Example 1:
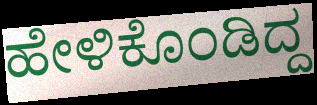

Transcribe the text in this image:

ಹೇಳಿಕೊಂಡಿದ್ದ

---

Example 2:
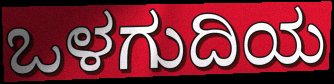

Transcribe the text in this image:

ಒಳಗುದಿಯ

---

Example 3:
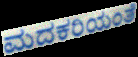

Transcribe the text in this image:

ಮದಕರಿಯಂತೆ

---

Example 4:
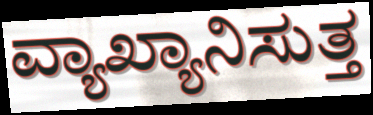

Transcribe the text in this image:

ವ್ಯಾಖ್ಯಾನಿಸುತ್ತ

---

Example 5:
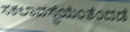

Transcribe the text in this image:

ಸಕಲಾವಸ್ಥೆಯೆಂತೆಂದಡೆ